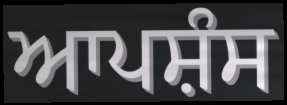
ਆਪਸ਼ੰਸ